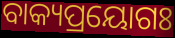
ବାକ୍ୟପ୍ରୟୋଗଃ